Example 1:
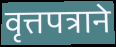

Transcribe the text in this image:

वृत्तपत्राने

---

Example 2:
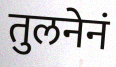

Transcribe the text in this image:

तुलनेनं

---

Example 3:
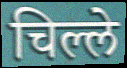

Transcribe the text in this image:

चिल्ले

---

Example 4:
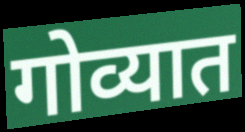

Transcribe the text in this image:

गोव्यात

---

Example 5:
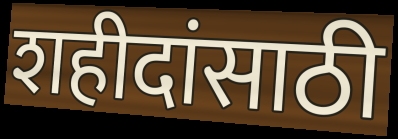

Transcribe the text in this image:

शहीदांसाठी